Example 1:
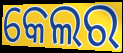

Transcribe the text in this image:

କେଲର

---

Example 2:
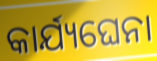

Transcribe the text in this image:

କାର୍ଯ୍ୟଘେନା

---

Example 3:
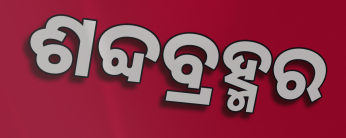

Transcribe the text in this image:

ଶବ୍ଦବ୍ରହ୍ମର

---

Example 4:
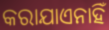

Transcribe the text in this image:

କରାଯାଏନାହିଁ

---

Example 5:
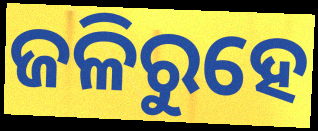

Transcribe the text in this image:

ଜଳିରୁହେ